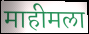
माहीमला